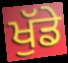
ਖੁੱਡੇ